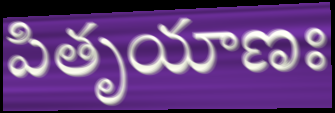
పితృయాణః